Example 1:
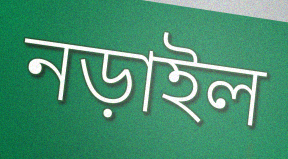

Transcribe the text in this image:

নড়াইল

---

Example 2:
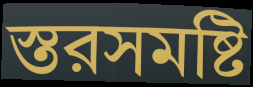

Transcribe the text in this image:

স্তরসমষ্টি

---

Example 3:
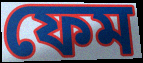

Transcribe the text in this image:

ফেম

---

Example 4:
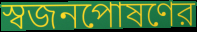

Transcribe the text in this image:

স্বজনপোষণের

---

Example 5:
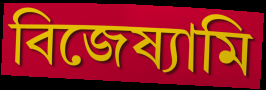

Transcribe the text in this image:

বিজেষ্যামি